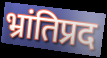
भ्रांतिप्रद